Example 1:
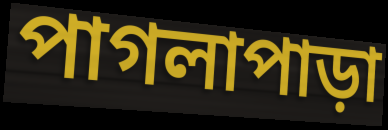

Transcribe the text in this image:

পাগলাপাড়া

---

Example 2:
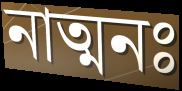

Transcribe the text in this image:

নাত্মনঃ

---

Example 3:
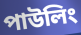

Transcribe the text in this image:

পাউলিং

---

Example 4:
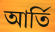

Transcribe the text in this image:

আর্তি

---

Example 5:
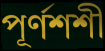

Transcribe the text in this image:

পূর্ণশশী